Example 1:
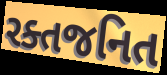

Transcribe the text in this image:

રક્તજનિત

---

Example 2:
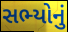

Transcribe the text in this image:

સભ્યોનું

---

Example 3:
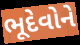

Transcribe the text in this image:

ભૂદેવોને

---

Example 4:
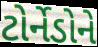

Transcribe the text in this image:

ટોર્નેડોને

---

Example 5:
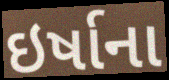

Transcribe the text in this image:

ઇર્ષાના